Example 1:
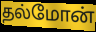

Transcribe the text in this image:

தல்மோன்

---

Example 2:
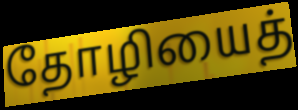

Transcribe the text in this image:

தோழியைத்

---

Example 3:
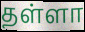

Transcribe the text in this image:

தள்ளா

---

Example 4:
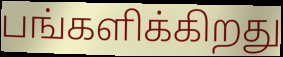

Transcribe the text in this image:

பங்களிக்கிறது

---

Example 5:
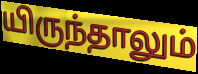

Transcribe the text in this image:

யிருந்தாலும்